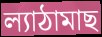
ল্যাঠামাছ